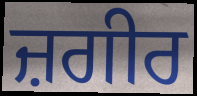
ਜ਼ਗੀਰ